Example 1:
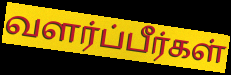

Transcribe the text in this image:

வளர்ப்பீர்கள்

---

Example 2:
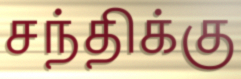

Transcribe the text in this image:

சந்திக்கு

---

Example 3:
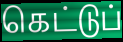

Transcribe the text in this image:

கெட்டுப்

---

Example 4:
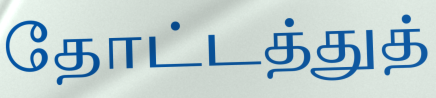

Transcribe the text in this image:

தோட்டத்துத்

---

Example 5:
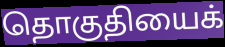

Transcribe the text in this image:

தொகுதியைக்